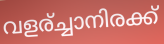
വളര്ച്ചാനിരക്ക്